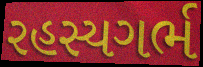
રહસ્યગર્ભ